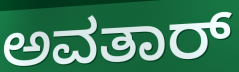
ಅವತಾರ್